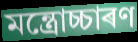
মন্ত্ৰোচ্চাৰণ